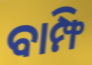
ବାମ୍ଫି